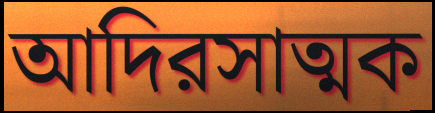
আদিরসাত্মক